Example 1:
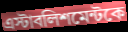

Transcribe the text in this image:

এস্টাবলিশমেন্টকে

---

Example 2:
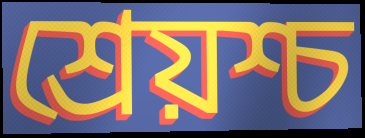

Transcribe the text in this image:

শ্রেয়শ্চ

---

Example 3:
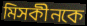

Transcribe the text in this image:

মিসকীনকে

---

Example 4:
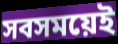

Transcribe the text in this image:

সবসময়েই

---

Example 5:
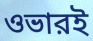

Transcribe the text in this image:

ওভারই